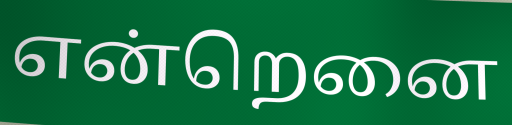
என்றெனை